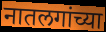
नातलगांच्या